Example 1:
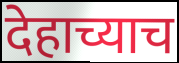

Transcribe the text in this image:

देहाच्याच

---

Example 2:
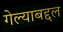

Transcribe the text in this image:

गेल्याबद्दल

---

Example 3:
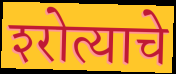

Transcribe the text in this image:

श्रोत्याचे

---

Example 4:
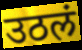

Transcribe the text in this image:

उठलं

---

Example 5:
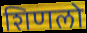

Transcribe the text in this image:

शिणलो